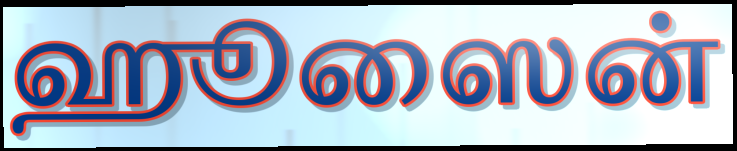
ஹூஸைன்